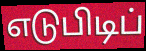
எடுபிடிப்